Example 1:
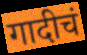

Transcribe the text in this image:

गादीचं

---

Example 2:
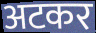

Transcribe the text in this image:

अटकर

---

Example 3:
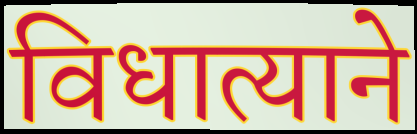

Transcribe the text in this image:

विधात्याने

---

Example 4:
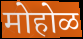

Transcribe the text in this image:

मोहोळ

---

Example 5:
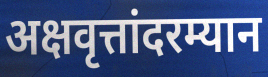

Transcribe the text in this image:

अक्षवृत्तांदरम्यान